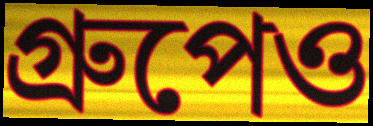
গ্রুপেও